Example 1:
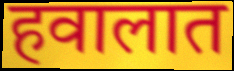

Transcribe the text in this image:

हवालात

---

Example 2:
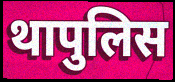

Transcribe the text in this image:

थापुलिस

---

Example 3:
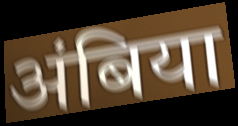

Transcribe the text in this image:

अंबिया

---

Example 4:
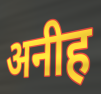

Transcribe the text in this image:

अनीह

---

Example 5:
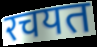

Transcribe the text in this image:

रचयत